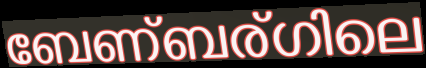
ബേണ്ബര്ഗിലെ